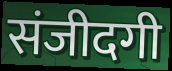
संजीदगी